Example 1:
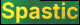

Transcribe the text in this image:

Spastic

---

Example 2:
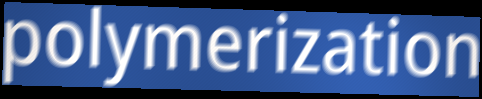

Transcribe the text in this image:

polymerization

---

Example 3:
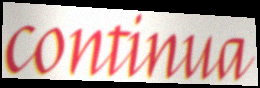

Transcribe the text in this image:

continua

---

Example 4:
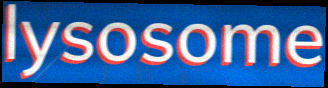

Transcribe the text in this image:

lysosome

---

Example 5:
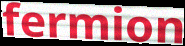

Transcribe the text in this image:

fermion